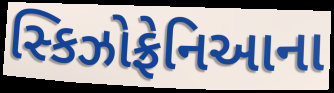
સ્કિઝોફ્રેનિઆના